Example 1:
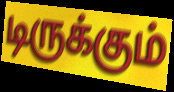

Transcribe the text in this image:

டிருக்கும்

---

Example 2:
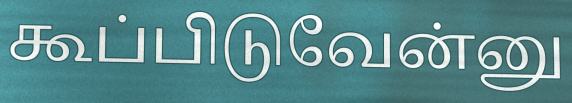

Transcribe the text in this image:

கூப்பிடுவேன்னு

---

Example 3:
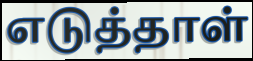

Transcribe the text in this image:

எடுத்தாள்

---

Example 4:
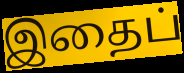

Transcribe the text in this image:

இதைப்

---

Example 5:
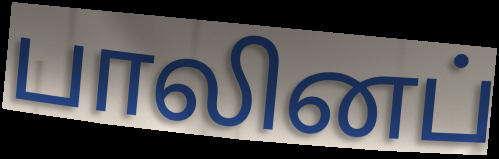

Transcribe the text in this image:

பாலினப்